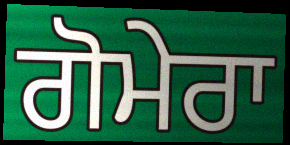
ਗੋਮੇਰਾ